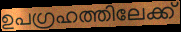
ഉപഗ്രഹത്തിലേക്ക്